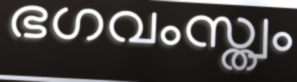
ഭഗവംസ്ത്വം